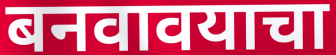
बनवावयाचा